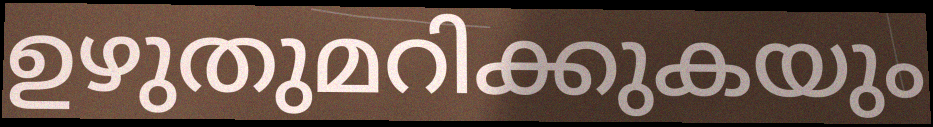
ഉഴുതുമറിക്കുകയും